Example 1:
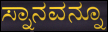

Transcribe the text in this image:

ಸ್ನಾನವನ್ನೂ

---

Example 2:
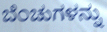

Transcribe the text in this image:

ಬೆಂಚುಗಳನ್ನು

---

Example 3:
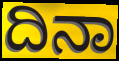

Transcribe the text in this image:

ದಿನಾ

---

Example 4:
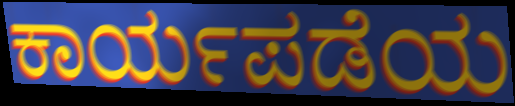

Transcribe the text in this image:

ಕಾರ್ಯಪಡೆಯ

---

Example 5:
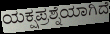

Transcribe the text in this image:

ಯಕ್ಷಪ್ರಶ್ನೆಯಾಗಿದೆ